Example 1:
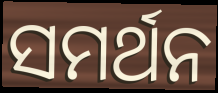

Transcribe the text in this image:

ସମର୍ଥନ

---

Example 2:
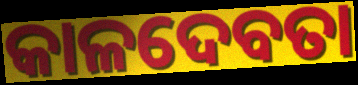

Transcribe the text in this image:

କାଳଦେବତା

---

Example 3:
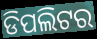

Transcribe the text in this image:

ଡିପଲିଟର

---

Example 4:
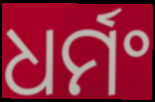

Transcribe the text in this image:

ଧର୍ମଂ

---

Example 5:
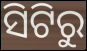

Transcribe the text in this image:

ସିଟିରୁ